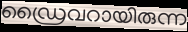
ഡ്രൈവറായിരുന്ന